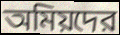
অমিয়দের